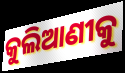
କୁଲିଆଣୀକୁ